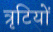
त्रृटियों